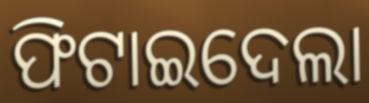
ଫିଟାଇଦେଲା